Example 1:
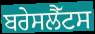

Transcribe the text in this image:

ਬਰੇਸਲੈੱਟਸ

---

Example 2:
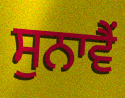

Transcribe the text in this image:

ਸੁਨਾਵੈਂ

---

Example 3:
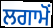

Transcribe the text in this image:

ਲਗਾਮੋਂ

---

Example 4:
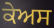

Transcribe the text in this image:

ਕੇਅਸ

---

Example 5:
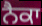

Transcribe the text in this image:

ਨੈਕਾ